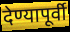
देण्यापूर्वी